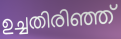
ഉച്ചതിരിഞ്ഞ്